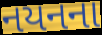
નયનના